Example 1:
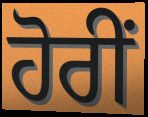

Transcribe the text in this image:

ਹੋਰੀਂ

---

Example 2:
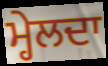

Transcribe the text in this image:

ਮ੍ਹੇਲਦਾ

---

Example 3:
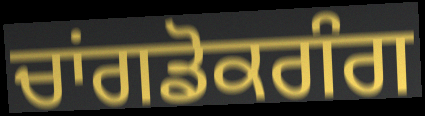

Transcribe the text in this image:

ਚਾਂਗਡੋਕਗੰਗ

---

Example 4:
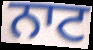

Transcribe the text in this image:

ਨਾਟ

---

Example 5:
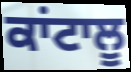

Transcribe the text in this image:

ਕਾਂਟਾਲੂ